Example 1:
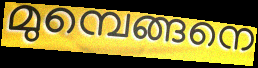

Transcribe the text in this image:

മുമ്പെങ്ങനെ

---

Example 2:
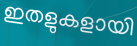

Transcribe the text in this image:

ഇതളുകളായി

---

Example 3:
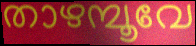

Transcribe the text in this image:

താഴമ്പൂവേ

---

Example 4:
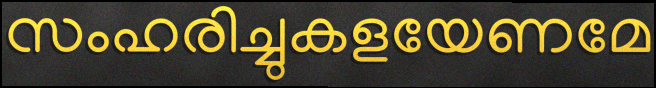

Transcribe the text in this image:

സംഹരിച്ചുകളയേണമേ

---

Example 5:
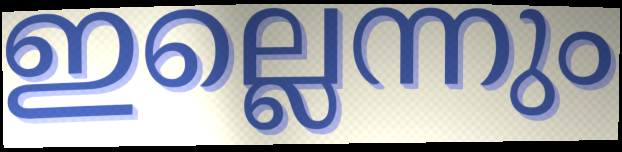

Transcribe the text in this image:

ഇല്ലെന്നും